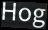
Hog